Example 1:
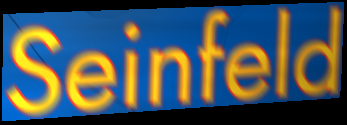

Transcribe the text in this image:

Seinfeld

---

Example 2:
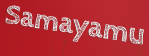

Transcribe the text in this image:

Samayamu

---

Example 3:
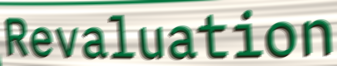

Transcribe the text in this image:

Revaluation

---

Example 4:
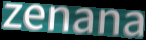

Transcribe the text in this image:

zenana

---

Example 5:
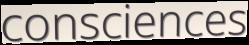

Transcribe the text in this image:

consciences